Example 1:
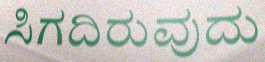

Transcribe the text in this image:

ಸಿಗದಿರುವುದು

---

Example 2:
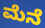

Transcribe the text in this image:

ಮೆನೆ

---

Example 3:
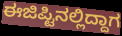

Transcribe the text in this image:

ಈಜಿಪ್ಟಿನಲ್ಲಿದ್ದಾಗ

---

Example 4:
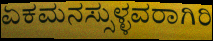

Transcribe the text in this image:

ಏಕಮನಸ್ಸುಳ್ಳವರಾಗಿರಿ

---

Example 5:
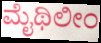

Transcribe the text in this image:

ಮೈಥಿಲೀಂ